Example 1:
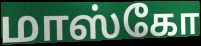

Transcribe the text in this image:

மாஸ்கோ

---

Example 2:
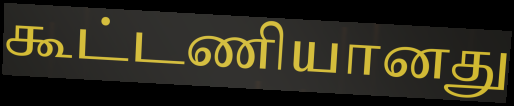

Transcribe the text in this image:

கூட்டணியானது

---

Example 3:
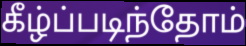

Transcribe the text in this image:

கீழ்ப்படிந்தோம்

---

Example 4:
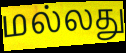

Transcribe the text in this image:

மல்லது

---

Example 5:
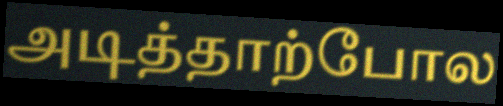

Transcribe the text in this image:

அடித்தாற்போல